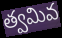
త్వమివ